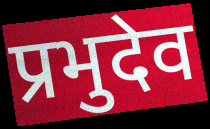
प्रभुदेव